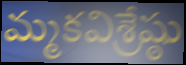
మ్మకవిశ్రేష్ఠు